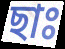
ছাঃ